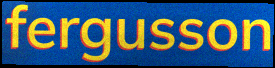
fergusson